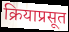
क्रियाप्रसूत